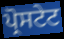
ਪ੍ਰੋਸਟੇਟ